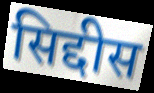
सिद्दीस